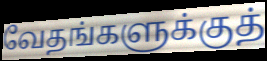
வேதங்களுக்குத்